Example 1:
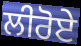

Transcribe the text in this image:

ਲੀਰੋਏ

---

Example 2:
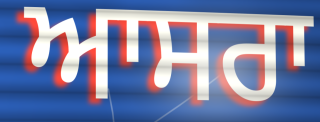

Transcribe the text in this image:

ਆਸਰਾ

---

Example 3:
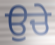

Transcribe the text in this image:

ਉਚੇ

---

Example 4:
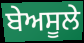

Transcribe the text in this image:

ਬੇਅਸੂਲੇ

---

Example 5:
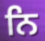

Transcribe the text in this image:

ਨਿ